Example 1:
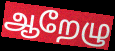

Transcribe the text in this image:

ஆறேழு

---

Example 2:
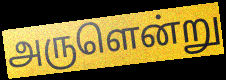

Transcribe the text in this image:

அருளென்று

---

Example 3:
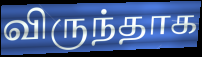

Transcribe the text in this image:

விருந்தாக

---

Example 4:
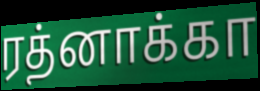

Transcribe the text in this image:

ரத்னாக்கா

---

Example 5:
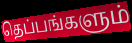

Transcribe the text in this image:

தெப்பங்களும்